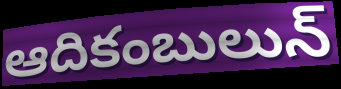
ఆదికంబులున్